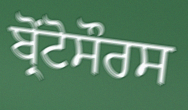
ਬ੍ਰੋਂਟੋਸੌਰਸ